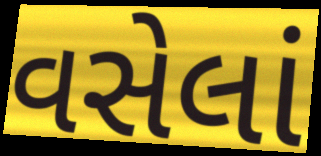
વસેલાં